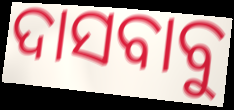
ଦାସବାବୁ